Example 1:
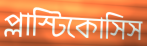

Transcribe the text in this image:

প্লাস্টিকোসিস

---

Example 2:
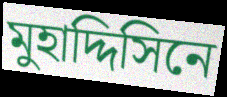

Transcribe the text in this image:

মুহাদ্দিসিনে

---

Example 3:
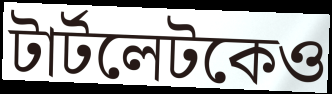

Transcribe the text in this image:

টার্টলেটকেও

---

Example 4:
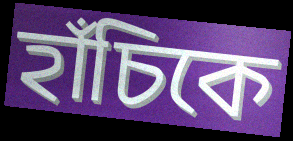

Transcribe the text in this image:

হাঁচিকে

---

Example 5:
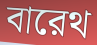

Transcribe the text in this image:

বারেথ